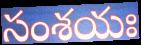
సంశయః